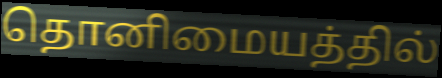
தொனிமையத்தில்